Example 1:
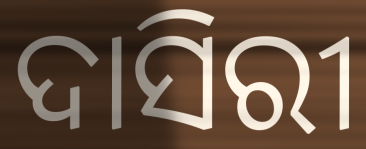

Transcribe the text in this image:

ଦାସିରୀ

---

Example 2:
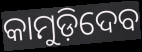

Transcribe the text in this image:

କାମୁଡ଼ିଦେବ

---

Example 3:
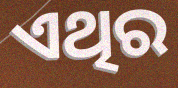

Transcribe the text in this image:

ଏଥିର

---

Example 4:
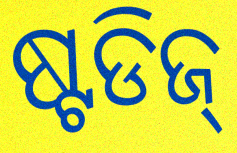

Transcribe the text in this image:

ଷ୍ଟଡିଜ୍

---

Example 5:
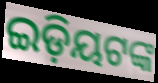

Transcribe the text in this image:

ଇଡ଼ିୟଟଙ୍କ